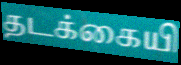
தடக்கையி